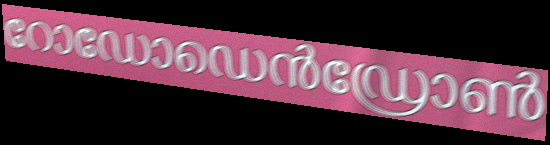
റോഡോഡെൻഡ്രോൺ